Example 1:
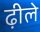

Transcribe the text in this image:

ढ़ीले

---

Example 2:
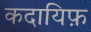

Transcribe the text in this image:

कदायिफ़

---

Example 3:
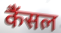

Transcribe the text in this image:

कैंसल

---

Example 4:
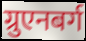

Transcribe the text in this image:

ग्रुएनबर्ग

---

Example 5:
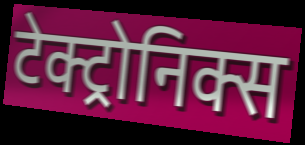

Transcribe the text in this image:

टेक्ट्रोनिक्स